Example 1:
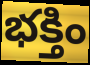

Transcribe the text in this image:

భక్తిం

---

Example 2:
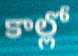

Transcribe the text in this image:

కాల్లో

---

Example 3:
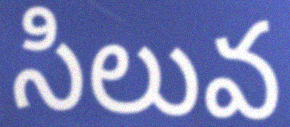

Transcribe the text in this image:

సిలువ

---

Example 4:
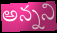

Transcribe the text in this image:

అన్నని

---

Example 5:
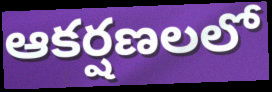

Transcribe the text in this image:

ఆకర్షణలలో